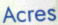
Acres